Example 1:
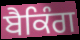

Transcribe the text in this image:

ਬੈਕਿੰਗ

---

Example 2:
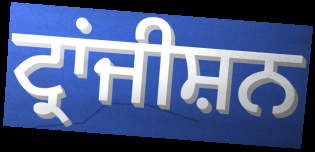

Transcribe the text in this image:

ਟ੍ਰਾਂਜੀਸ਼ਨ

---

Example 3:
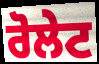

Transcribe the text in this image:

ਰੋਲੇਟ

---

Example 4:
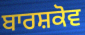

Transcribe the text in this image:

ਬਾਰਸ਼ਕੋਵ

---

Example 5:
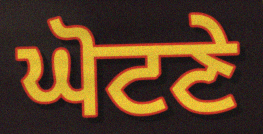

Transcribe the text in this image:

ਘੋਟਣੇ